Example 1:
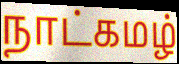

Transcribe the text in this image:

நாட்கமழ்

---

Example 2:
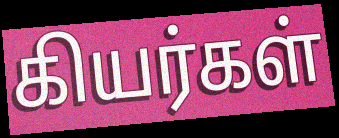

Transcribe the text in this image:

கியர்கள்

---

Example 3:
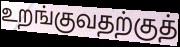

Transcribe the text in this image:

உறங்குவதற்குத்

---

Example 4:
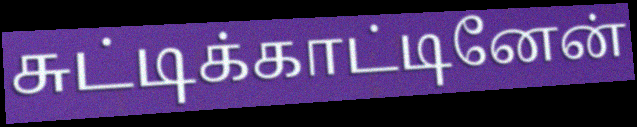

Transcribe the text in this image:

சுட்டிக்காட்டினேன்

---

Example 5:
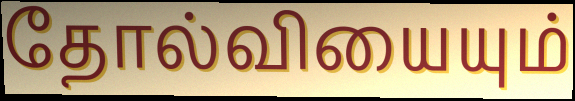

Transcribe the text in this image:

தோல்வியையும்